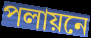
পলায়নে